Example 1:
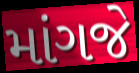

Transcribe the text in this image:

માંગજે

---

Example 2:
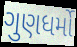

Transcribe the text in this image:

ગુણધર્મો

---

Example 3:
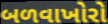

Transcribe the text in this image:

બળવાખોરો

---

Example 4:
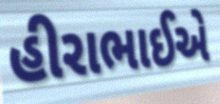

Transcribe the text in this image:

હીરાભાઈએ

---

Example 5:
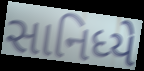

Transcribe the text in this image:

સાનિધ્યે